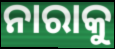
ନାରାକୁ